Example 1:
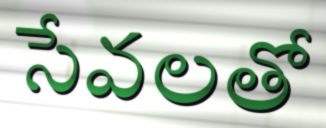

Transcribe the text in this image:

సేవలతో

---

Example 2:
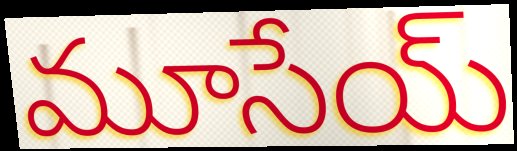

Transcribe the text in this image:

మూసేయ్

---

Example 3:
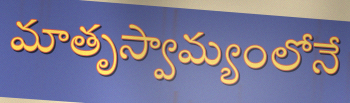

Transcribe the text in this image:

మాతృస్వామ్యంలోనే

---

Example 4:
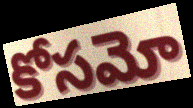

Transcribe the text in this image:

కోసమో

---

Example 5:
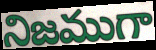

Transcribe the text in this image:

నిజముగా